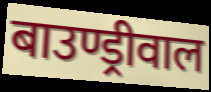
बाउण्ड्रीवाल